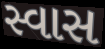
સ્વાસ